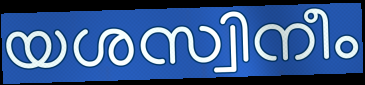
യശസ്വിനീം